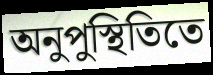
অনুপুস্থিতিতে